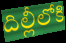
దిల్లీలోకి